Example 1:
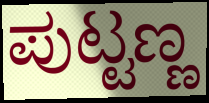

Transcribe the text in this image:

ಪುಟ್ಟಣ್ಣ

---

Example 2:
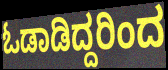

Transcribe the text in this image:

ಓಡಾಡಿದ್ದರಿಂದ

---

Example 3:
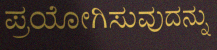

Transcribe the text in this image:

ಪ್ರಯೋಗಿಸುವುದನ್ನು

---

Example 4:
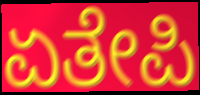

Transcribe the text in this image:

ಏತೇಪಿ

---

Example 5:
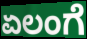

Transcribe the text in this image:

ಏಲಂಗೆ